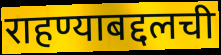
राहण्याबद्दलची